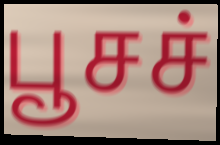
பூசச்